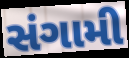
સંગામી